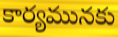
కార్యమునకు